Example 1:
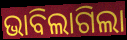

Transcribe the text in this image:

ଭାବିଲାଗିଲା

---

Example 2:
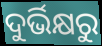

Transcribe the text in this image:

ଦୁର୍ଭିକ୍ଷରୁ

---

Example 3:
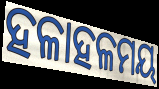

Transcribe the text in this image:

ହଳାହଳମୟ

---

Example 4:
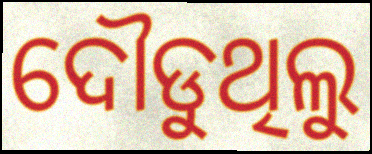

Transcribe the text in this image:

ଦୌଡୁଥିଲୁ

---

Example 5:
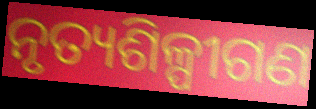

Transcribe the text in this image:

ନୃତ୍ୟଶିଳ୍ପୀଗଣ